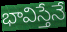
భావిస్తేనే